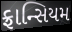
ફ્રાન્સિયમ